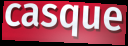
casque